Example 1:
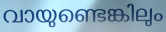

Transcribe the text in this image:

വായുണ്ടെങ്കിലും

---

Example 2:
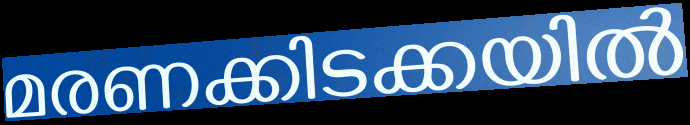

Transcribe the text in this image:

മരണക്കിടക്കയിൽ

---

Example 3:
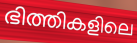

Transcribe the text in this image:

ഭിത്തികളിലെ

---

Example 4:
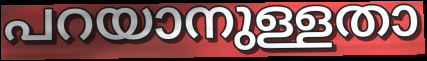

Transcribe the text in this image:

പറയാനുള്ളതാ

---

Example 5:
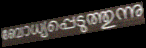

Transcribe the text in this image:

ബോധ്യപ്പെടുത്തുന്നു